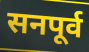
सनपूर्व